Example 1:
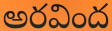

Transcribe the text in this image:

అరవింద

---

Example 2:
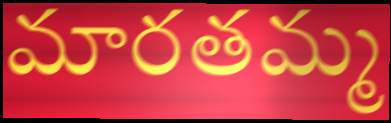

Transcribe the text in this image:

మారతమ్మ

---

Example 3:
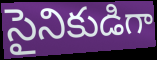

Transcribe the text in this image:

సైనికుడిగా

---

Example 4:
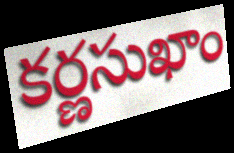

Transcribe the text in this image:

కర్ణసుఖాం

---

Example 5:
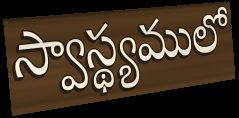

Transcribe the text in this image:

స్వాస్థ్యములో